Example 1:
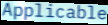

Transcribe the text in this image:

Applicable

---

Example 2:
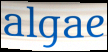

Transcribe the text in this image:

algae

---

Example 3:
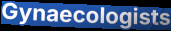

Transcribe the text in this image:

Gynaecologists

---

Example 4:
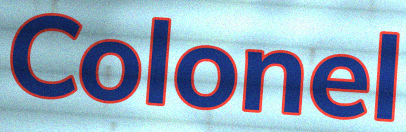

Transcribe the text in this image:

Colonel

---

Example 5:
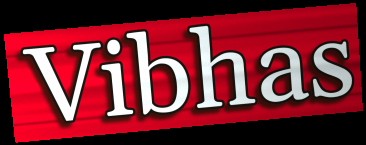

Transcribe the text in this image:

Vibhas